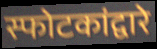
स्फोटकांद्वारे